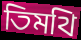
তিমথি